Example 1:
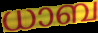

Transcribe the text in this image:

ധാബ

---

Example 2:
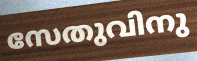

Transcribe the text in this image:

സേതുവിനു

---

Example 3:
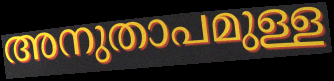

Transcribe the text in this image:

അനുതാപമുള്ള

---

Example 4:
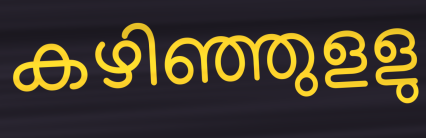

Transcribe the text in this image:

കഴിഞ്ഞുളളു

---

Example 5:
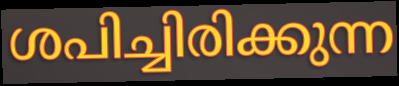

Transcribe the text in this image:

ശപിച്ചിരിക്കുന്ന